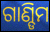
ଗାଣ୍ଡିମ